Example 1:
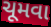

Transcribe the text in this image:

ચૂમવા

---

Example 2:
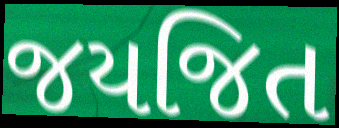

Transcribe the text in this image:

જયજિત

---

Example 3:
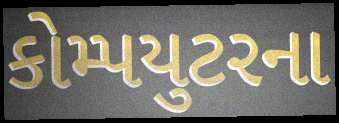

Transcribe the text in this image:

કોમ્પયુટરના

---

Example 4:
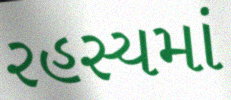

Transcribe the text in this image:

રહસ્યમાં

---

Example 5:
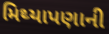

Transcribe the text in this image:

મિથ્યાપણાની